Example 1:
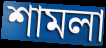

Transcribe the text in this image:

শামলা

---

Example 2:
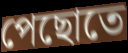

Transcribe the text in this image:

পেছোতে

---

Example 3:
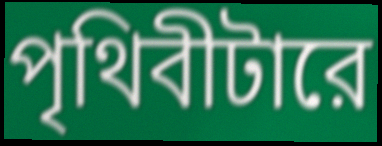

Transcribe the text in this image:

পৃথিবীটারে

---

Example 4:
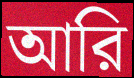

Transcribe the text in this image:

আরি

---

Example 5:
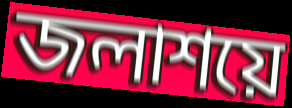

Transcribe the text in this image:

জলাশয়ে